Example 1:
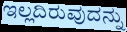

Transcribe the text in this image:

ಇಲ್ಲದಿರುವುದನ್ನು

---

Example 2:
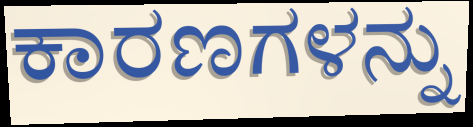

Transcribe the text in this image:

ಕಾರಣಗಳನ್ನು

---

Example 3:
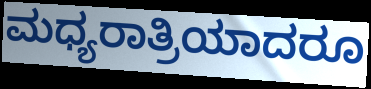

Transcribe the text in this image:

ಮಧ್ಯರಾತ್ರಿಯಾದರೂ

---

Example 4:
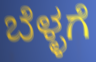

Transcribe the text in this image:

ಬೆಳ್ಳಗೆ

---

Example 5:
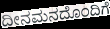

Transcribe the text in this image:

ದೀನಮನದೊಂದಿಗೆ